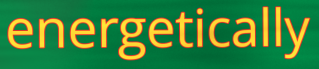
energetically